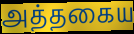
அத்தகைய